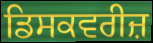
ਡਿਸਕਵਰੀਜ਼